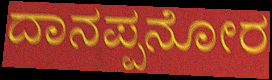
ದಾನಪ್ಪನೋರ